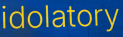
idolatory